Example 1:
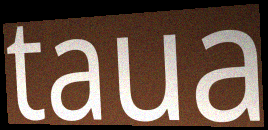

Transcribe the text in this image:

taua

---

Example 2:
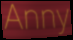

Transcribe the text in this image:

Anny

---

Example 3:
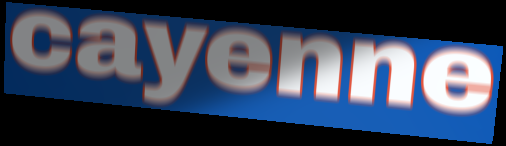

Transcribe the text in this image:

cayenne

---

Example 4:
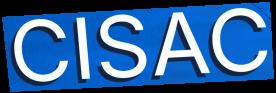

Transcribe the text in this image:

CISAC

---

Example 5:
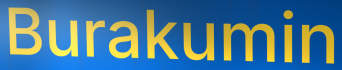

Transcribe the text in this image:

Burakumin